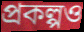
প্রকল্পও